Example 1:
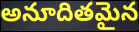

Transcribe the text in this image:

అనూదితమైన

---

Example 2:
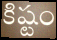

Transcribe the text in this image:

కిష్టం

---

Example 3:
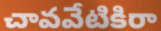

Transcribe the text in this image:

చావవేటికిరా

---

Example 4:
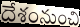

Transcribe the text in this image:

దేశంనుంచి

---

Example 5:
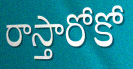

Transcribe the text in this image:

రాస్తారోకో